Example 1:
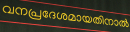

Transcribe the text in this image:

വനപ്രദേശമായതിനാൽ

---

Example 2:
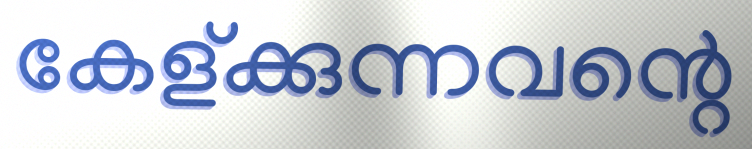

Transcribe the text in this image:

കേള്ക്കുന്നവന്റെ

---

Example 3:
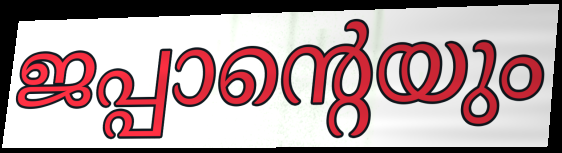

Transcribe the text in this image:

ജപ്പാന്റെയും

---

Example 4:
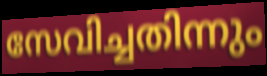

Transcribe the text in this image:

സേവിച്ചതിന്നും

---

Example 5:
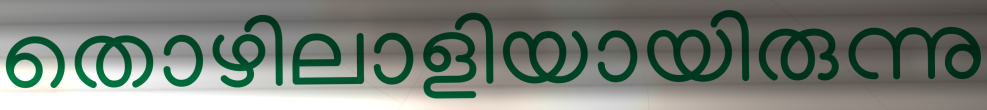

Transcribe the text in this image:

തൊഴിലാളിയായിരുന്നു